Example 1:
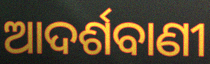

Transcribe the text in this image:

ଆଦର୍ଶବାଣୀ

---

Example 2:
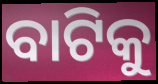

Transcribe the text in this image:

ବାଟିକୁ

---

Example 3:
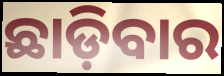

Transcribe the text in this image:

ଛାଡ଼ିବାର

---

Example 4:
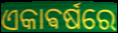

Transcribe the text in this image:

ଏକାଵର୍ଷରେ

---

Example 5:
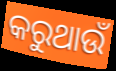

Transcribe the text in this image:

କରୁଥାଉଁ